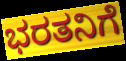
ಭರತನಿಗೆ